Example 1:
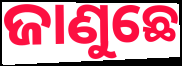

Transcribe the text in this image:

ଜାଣୁଛେ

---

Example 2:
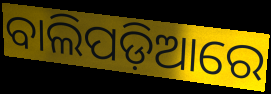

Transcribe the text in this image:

ବାଲିପଡ଼ିଆରେ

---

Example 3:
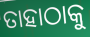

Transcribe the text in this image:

ତାହାଠାକୁ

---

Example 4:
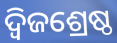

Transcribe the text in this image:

ଦ୍ୱିଜଶ୍ରେଷ୍ଠ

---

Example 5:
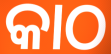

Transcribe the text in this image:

କାଠ